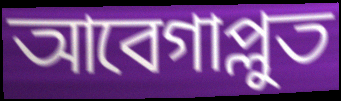
আবেগাপ্লুত